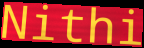
Nithi